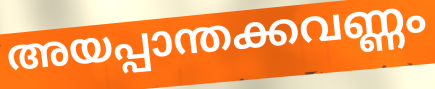
അയപ്പാന്തക്കവണ്ണം